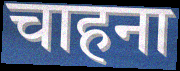
चाहना